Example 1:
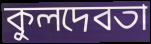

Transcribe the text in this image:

কুলদেবতা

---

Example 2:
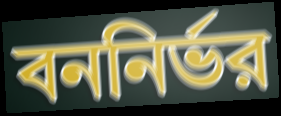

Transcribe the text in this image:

বননির্ভর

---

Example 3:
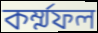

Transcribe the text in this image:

কর্ম্মফল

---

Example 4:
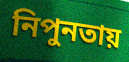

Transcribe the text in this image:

নিপুনতায়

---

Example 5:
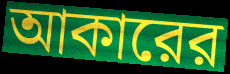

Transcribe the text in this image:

আকারের